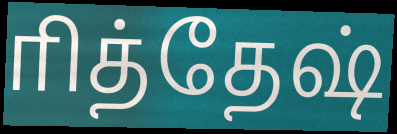
ரித்தேஷ்